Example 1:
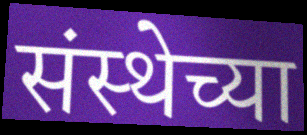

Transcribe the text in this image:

संस्थेच्या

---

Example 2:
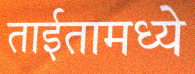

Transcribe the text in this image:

ताईतामध्ये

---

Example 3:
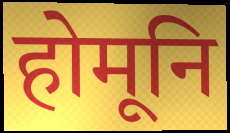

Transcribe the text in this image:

होमूनि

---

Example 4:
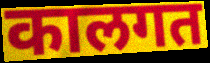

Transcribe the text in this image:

कालगत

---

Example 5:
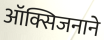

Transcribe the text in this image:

ऑक्सिजनाने